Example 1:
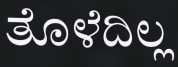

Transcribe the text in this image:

ತೊಳೆದಿಲ್ಲ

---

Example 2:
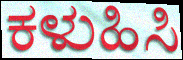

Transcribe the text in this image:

ಕಳುಹಿಸಿ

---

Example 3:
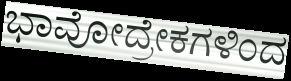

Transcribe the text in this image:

ಭಾವೋದ್ರೇಕಗಳಿಂದ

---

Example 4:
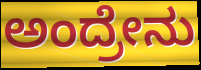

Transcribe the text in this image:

ಅಂದ್ರೇನು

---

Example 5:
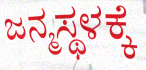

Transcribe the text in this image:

ಜನ್ಮಸ್ಥಳಕ್ಕೆ